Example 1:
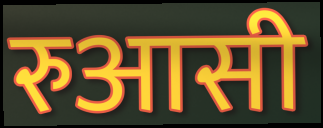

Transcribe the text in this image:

रुआसी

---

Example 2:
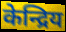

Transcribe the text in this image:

केन्द्रिय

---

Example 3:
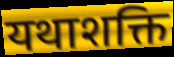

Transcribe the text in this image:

यथाशक्ति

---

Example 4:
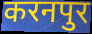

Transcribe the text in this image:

करनपुर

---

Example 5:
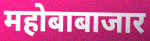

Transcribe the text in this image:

महोबाबाजार